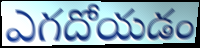
ఎగదోయడం